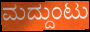
ಮದ್ದುಂಟು